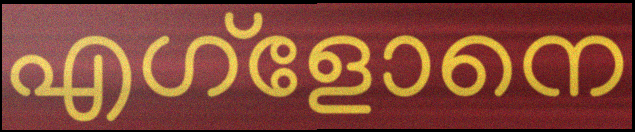
എഗ്ളോനെ